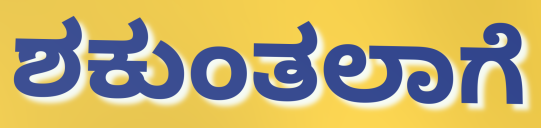
ಶಕುಂತಲಾಗೆ